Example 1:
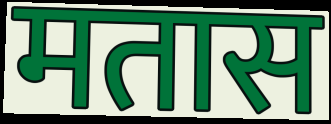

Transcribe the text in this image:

मतास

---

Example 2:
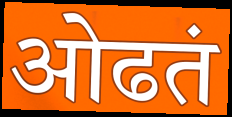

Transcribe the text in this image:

ओढतं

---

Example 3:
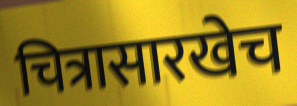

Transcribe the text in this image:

चित्रासारखेच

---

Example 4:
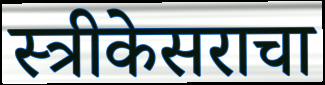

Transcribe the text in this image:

स्त्रीकेसराचा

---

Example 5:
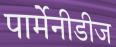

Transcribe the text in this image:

पार्मेनीडीज